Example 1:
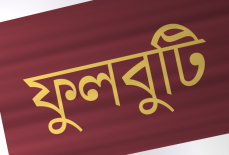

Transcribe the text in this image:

ফুলবুটি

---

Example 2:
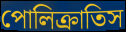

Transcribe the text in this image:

পোলিক্রাতিস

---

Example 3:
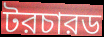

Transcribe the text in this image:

টরচারড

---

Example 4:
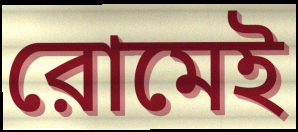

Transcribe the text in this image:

রোমেই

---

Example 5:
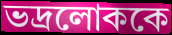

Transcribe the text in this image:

ভদ্রলোককে